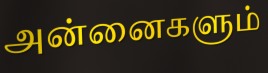
அன்னைகளும்